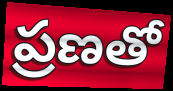
ప్రణతో